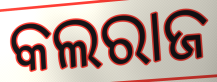
କଲରାଜ